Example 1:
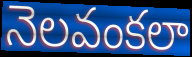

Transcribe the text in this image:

నెలవంకలా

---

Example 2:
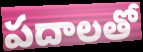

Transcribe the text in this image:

పదాలతో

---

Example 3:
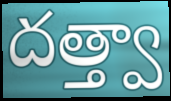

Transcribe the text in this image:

దత్త్వా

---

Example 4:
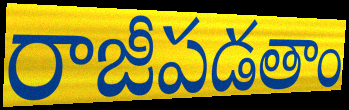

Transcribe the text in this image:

రాజీపడతాం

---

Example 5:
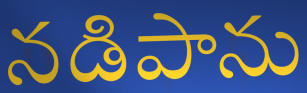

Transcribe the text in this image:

నడిపాను